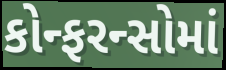
કોન્ફરન્સોમાં